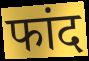
फांद